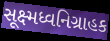
સૂક્ષ્મધ્વનિગ્રાહક